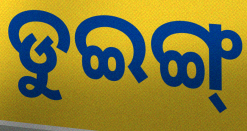
ଡୁଇଙ୍ଗ୍